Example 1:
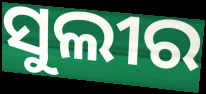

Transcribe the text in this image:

ସୁଲୀର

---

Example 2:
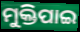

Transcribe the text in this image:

ମୁକ୍ତିପାଇ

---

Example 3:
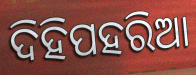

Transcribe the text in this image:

ଦିହିପହରିଆ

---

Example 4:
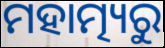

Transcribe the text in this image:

ମହାତ୍ମ୍ୟରୁ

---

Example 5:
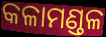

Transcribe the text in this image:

କଳାମଣ୍ଡଳ